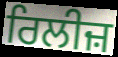
ਰਿਲੀਜ਼